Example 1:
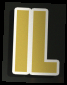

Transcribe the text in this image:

IL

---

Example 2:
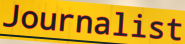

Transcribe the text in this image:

Journalist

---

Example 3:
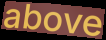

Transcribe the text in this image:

above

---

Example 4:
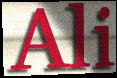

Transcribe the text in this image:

Ali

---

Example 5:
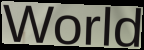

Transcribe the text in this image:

World